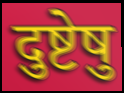
दुष्टेषु